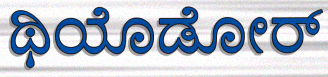
ಥಿಯೊಡೋರ್